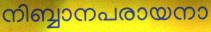
നിബ്ബാനപരായനാ